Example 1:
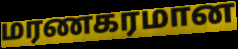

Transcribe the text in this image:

மரணகரமான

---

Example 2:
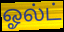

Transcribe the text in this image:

ஓல்ட்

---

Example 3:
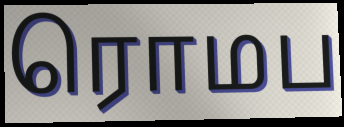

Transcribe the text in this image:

ரொமப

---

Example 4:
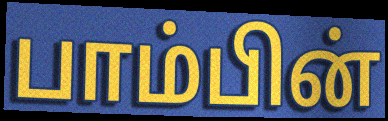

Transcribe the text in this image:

பாம்பின்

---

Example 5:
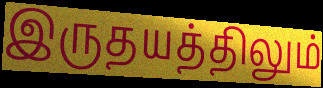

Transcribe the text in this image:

இருதயத்திலும்